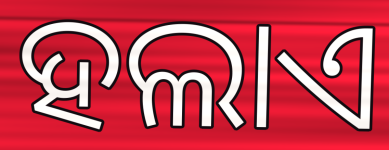
ହଲାଏ